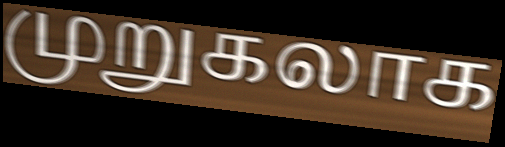
முறுகலாக